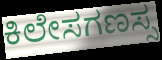
ಕಿಲೇಸಗಣಸ್ಸ